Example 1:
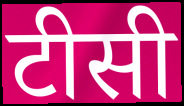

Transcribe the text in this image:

टीसी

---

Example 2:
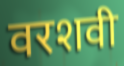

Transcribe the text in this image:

वरशवी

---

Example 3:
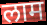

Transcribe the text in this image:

लाम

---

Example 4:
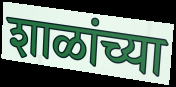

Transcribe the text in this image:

शाळांच्या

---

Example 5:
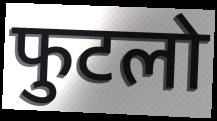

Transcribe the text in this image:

फुटलो